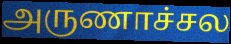
அருணாச்சல